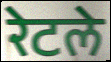
रेटले